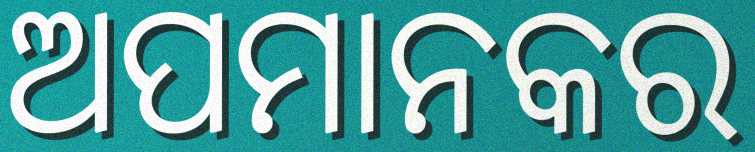
ଅପମାନକର